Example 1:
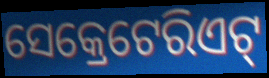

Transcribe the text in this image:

ସେକ୍ରେଟେରିଏଟ୍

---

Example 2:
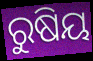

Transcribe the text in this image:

ରୁଷିୟ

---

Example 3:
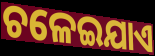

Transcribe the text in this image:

ଚଳେଇଯାଏ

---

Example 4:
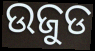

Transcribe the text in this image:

ଉଜୁଡ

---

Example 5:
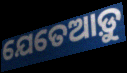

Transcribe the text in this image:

ଯେତେଆଡ଼ୁ